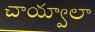
చాయ్వాలా